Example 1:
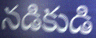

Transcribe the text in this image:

నడికుడి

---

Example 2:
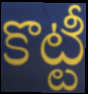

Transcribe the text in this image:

కొట్టీ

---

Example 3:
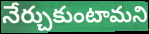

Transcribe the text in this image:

నేర్చుకుంటామని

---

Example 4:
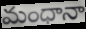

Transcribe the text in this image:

మంధానా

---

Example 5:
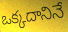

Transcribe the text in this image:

ఒక్కదానినే